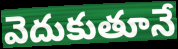
వెదుకుతూనే